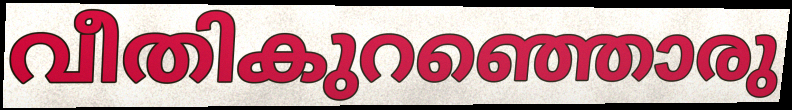
വീതികുറഞ്ഞൊരു